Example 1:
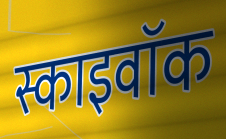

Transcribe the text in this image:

स्काइवॉक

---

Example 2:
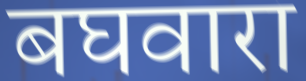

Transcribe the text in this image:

बघवारा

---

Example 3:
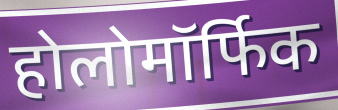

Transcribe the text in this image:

होलोमॉर्फिक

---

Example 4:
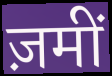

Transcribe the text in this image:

ज़मीं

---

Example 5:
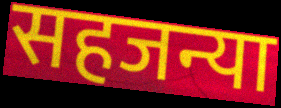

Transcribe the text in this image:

सहजन्या